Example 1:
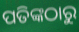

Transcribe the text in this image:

ପତିଙ୍କଠାରୁ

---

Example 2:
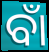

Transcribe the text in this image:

ବାଁ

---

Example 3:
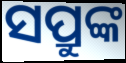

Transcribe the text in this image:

ସପ୍ରୁଙ୍କ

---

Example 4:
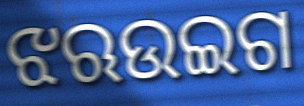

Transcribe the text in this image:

ଝଋଉଇଗ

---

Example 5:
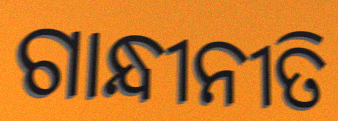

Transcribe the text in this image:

ଗାନ୍ଧୀନୀତି